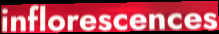
inflorescences